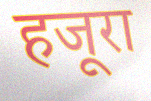
हजूरा